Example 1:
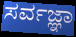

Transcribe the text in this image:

ಸರ್ವಜ್ಞಾ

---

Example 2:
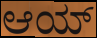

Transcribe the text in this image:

ಆಯ್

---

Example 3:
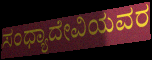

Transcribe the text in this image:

ಸಂಧ್ಯಾದೇವಿಯವರ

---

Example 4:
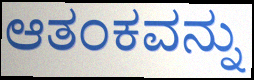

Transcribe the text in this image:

ಆತಂಕವನ್ನು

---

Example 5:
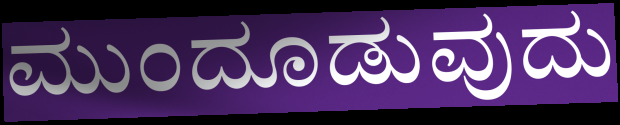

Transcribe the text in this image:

ಮುಂದೂಡುವುದು